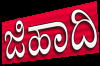
ಜಿಹಾದಿ